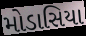
મોડાસિયા